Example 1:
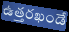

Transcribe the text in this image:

ఉత్తరఖండే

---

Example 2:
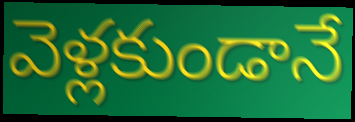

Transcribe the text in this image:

వెళ్లకుండానే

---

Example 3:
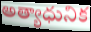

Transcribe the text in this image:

అత్యాధునిక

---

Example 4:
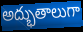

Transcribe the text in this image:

అద్భుతాలుగా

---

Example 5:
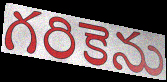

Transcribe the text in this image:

గరికెను